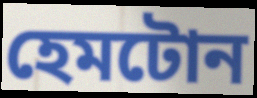
হেমটোন